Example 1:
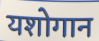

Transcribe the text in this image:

यशोगान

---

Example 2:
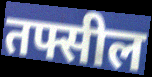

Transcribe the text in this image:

तफ्सील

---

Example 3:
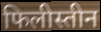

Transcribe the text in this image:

फिलीस्तीन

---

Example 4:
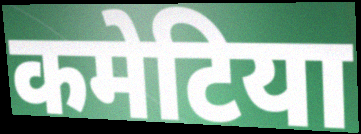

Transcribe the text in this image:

कमेटिया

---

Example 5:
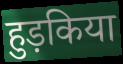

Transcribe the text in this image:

हुड़किया